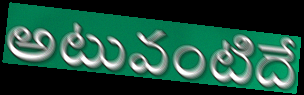
అటువంటిదే